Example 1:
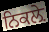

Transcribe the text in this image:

ਨਿਕਲ਼ੇ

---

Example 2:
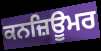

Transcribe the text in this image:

ਕਨਜ਼ਿਊਮਰ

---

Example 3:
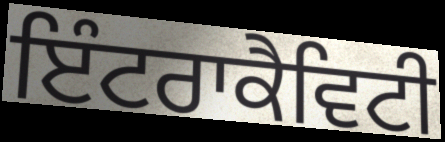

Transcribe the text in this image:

ਇੰਟਰਾਕੈਵਿਟੀ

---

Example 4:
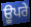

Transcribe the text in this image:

ਊਪਰੇ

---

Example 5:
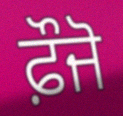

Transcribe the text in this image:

ਫ਼ੌਜੋ